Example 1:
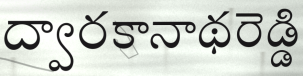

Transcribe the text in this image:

ద్వారకానాథరెడ్డి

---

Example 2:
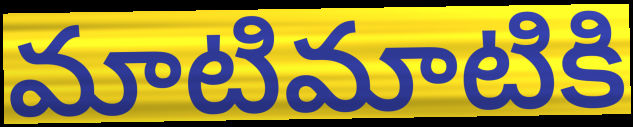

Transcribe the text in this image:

మాటిమాటికి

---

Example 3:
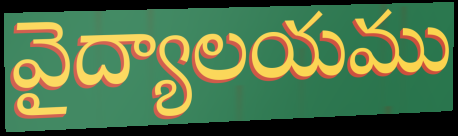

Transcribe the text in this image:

వైద్యాలయము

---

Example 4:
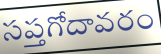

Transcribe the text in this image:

సప్తగోదావరం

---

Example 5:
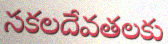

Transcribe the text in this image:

సకలదేవతలకు